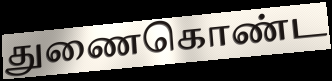
துணைகொண்ட